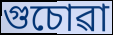
গুচোৱা